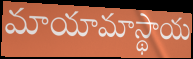
మాయామాస్థాయ